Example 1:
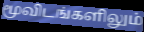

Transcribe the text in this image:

மூவிடங்களிலும்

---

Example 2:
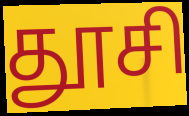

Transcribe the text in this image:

தூசி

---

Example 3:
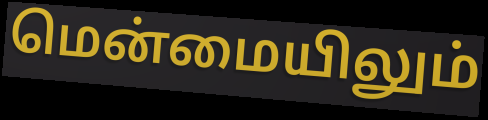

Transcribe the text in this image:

மென்மையிலும்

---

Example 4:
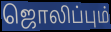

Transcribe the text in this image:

ஜொலிப்பும்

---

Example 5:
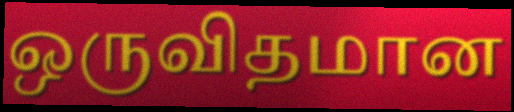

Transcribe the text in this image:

ஒருவிதமான